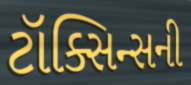
ટૉક્સિન્સની